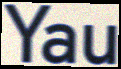
Yau